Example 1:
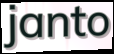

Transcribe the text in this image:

janto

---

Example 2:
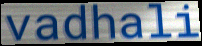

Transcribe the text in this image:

vadhali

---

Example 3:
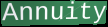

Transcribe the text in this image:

Annuity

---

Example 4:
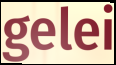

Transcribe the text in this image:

gelei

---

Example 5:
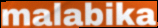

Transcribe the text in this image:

malabika